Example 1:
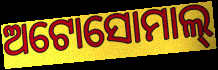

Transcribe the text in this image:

ଅଟୋସୋମାଲ୍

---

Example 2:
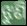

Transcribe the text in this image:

ଝୁଣି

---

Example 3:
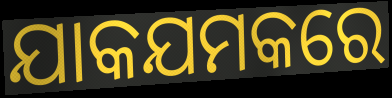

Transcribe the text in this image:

ଯାକଯମକରେ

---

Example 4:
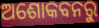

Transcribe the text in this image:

ଅଶୋକବନରୁ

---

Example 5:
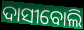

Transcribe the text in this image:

ଦାସୀବୋଲି